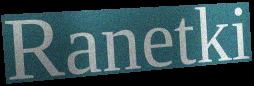
Ranetki